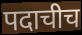
पदाचीच